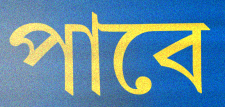
পাবে